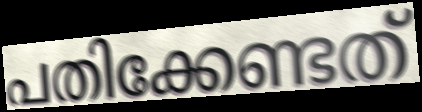
പതിക്കേണ്ടത്